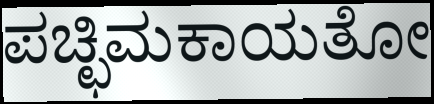
ಪಚ್ಛಿಮಕಾಯತೋ